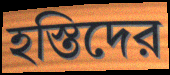
হস্তিদের